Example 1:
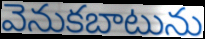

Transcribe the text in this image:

వెనుకబాటును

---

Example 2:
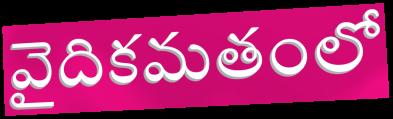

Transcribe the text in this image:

వైదికమతంలో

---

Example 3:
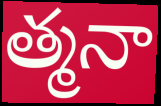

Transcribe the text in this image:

త్మనా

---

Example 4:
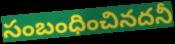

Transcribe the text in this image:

సంబంధించినదనీ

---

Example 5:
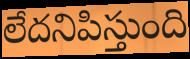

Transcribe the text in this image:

లేదనిపిస్తుంది